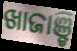
ଖାଜାଞ୍ଚି